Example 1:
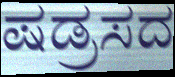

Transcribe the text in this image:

ಷಡ್ರಸದ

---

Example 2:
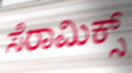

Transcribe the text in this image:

ಸೆರಾಮಿಕ್ಸ್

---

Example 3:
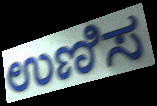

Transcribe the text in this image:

ಉಣಿಸ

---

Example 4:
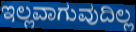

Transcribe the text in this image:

ಇಲ್ಲವಾಗುವುದಿಲ್ಲ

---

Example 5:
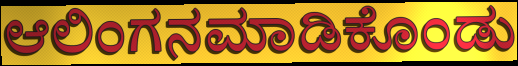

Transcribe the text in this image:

ಆಲಿಂಗನಮಾಡಿಕೊಂಡು